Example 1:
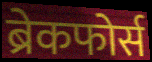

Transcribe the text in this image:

ब्रेकफोर्स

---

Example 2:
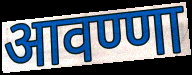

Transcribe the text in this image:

आवण्णा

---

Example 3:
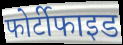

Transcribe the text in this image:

फोर्टीफाइड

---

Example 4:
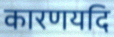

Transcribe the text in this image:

कारणयदि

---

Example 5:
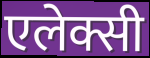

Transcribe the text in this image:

एलेक्सी